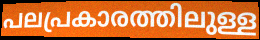
പലപ്രകാരത്തിലുള്ള